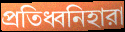
প্রতিধ্বনিহারা